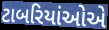
ટાબરિયાંઓએ